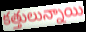
కత్తులున్నాయి